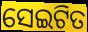
ସେଇଟିତ